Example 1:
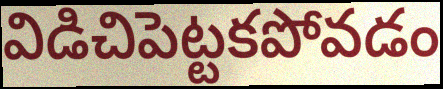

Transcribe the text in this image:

విడిచిపెట్టకపోవడం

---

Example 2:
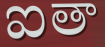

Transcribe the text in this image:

ఐతా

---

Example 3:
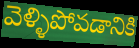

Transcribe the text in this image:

వెళ్ళిపోవడానికి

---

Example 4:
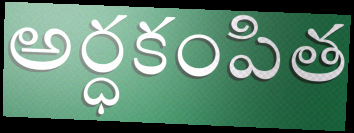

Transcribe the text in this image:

అర్ధకంపిత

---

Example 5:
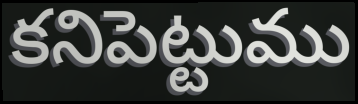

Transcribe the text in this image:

కనిపెట్టుము